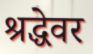
श्रद्धेवर